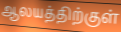
ஆலயத்திற்குள்